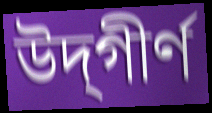
উদ্‌গীর্ণ